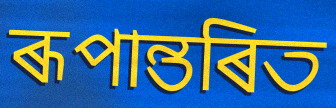
ৰূপান্তৰিত